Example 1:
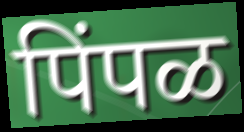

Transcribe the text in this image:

पिंपळ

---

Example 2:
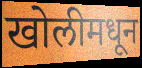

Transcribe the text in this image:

खोलीमधून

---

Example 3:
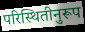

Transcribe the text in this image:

परिस्थितीनुरूप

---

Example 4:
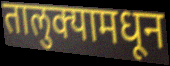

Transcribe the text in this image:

तालुक्यामधून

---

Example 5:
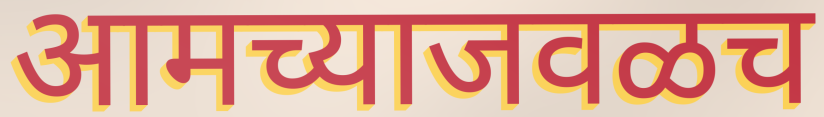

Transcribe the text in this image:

आमच्याजवळच